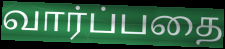
வார்ப்பதை